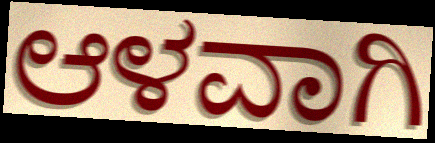
ಆಳವಾಗಿ